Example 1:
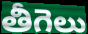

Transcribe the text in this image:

తీగెలు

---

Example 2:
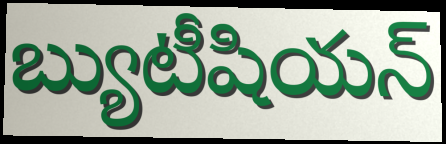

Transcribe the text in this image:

బ్యుటీషియన్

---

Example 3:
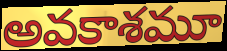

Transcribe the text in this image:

అవకాశమూ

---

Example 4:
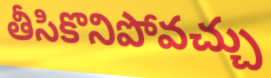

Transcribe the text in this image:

తీసికొనిపోవచ్చు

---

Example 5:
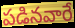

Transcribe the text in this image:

పడినవారే